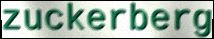
zuckerberg